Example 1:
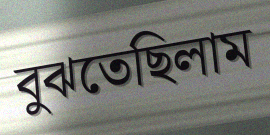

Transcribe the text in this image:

বুঝতেছিলাম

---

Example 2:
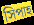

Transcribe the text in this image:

সিপাহ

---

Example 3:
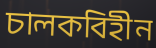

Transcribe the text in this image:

চালকবিহীন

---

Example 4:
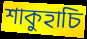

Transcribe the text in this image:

শাকুহাচি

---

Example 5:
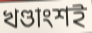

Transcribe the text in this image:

খণ্ডাংশই